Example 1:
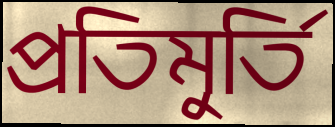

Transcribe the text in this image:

প্রতিমুর্তি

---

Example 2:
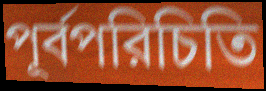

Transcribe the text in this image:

পূর্বপরিচিতি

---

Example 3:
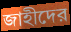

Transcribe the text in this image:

জাহীদের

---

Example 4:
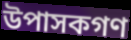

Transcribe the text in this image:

উপাসকগণ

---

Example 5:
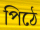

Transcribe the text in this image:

পিঠে